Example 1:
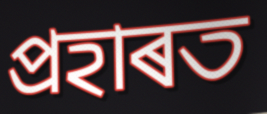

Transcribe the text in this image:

প্ৰহাৰত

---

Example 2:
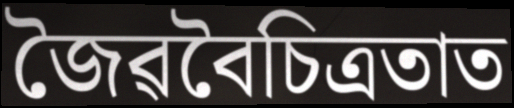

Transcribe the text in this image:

জৈৱবৈচিত্ৰতাত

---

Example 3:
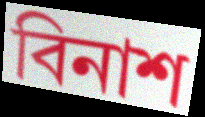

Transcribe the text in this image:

বিনাশ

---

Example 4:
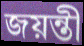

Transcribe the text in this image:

জয়ন্তী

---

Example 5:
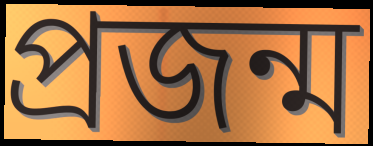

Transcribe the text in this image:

প্ৰজন্ম